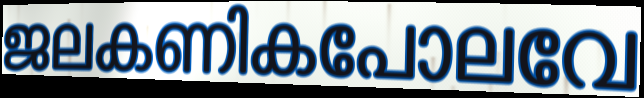
ജലകണികപോലവേ